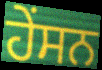
ਹੇਂਸਨ